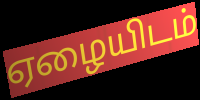
ஏழையிடம்